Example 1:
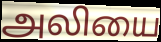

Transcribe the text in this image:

அலியை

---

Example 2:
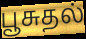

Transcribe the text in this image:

பூசுதல்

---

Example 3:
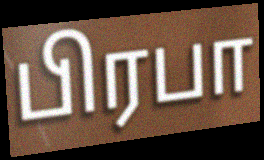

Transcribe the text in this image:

பிரபா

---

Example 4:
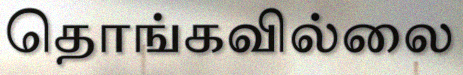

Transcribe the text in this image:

தொங்கவில்லை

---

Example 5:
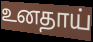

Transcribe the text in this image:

உனதாய்